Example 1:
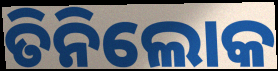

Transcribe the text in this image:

ତିନିଲୋକ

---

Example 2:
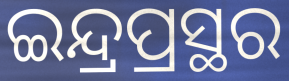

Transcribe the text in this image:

ଇନ୍ଦ୍ରପ୍ରସ୍ଥର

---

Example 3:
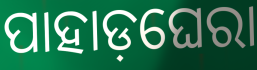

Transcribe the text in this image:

ପାହାଡ଼ଘେରା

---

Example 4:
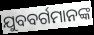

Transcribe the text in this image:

ଯୁବବର୍ଗମାନଙ୍କ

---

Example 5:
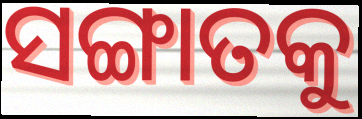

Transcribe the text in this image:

ସଙ୍ଗାତକୁ